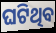
ଘଟିଥିବ